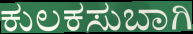
ಕುಲಕಸುಬಾಗಿ